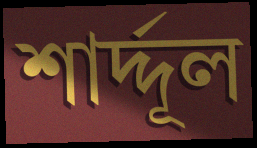
শার্দ্দূল